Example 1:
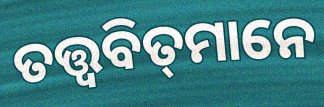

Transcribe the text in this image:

ତତ୍ତ୍ୱବିତ୍‌ମାନେ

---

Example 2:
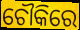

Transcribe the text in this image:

ଚୌକିରେ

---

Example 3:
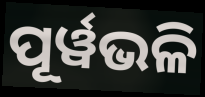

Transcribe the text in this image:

ପୂର୍ୱଭଳି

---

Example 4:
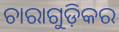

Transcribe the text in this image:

ଚାରାଗୁଡ଼ିକର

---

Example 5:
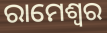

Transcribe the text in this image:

ରାମେଶ୍ୱର